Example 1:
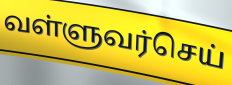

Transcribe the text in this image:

வள்ளுவர்செய்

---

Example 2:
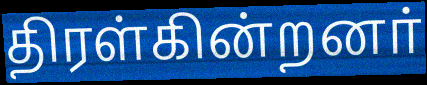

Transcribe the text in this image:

திரள்கின்றனர்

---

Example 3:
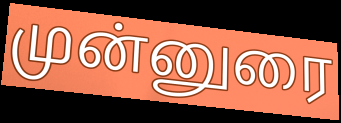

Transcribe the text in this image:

முன்னுரை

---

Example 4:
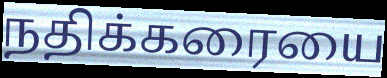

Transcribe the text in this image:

நதிக்கரையை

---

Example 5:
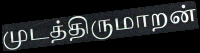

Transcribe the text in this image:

முடத்திருமாறன்